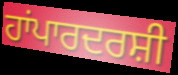
ਹਾਂਪਾਰਦਰਸ਼ੀ